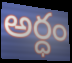
అర్ధం